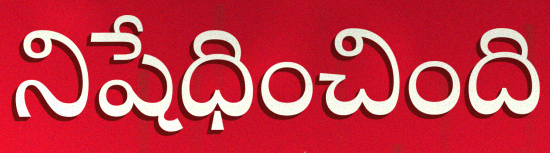
నిషేధించింది